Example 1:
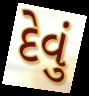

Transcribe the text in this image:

દેવું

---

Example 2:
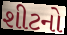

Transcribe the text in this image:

શીટનો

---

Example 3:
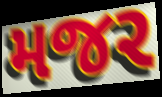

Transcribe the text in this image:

મજર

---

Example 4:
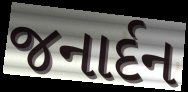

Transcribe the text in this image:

જનાર્દન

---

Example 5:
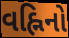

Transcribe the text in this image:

વહ્નિનો